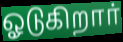
ஓடுகிறார்